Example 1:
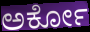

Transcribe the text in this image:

ಅರ್ಕೋ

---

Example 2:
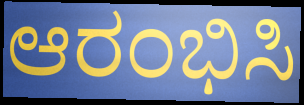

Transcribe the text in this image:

ಆರಂಭಿಸಿ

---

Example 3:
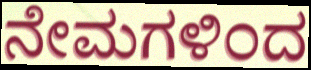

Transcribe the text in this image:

ನೇಮಗಳಿಂದ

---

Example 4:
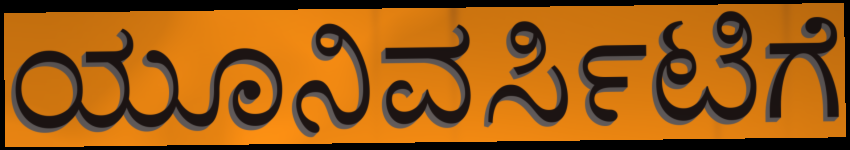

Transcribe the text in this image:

ಯೂನಿವರ್ಸಿಟಿಗೆ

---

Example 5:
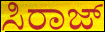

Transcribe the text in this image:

ಸಿರಾಜ್